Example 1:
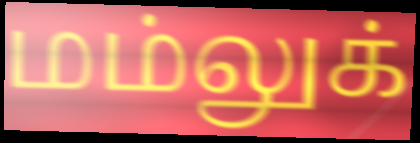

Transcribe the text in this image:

மம்லுக்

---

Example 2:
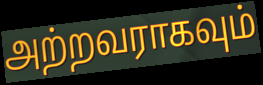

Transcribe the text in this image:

அற்றவராகவும்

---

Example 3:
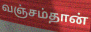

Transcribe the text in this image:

வஞ்சம்தான்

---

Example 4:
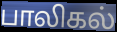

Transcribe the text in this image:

பாலிகல்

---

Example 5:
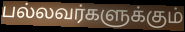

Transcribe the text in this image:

பல்லவர்களுக்கும்